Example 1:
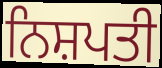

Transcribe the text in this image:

ਨਿਸ਼ਪਤੀ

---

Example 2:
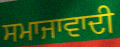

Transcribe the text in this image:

ਸਮਾਜਾਵਾਦੀ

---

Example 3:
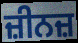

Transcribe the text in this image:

ਜ਼ੀਨਜ਼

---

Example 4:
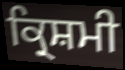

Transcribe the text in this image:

ਕ੍ਰਿਸ਼ਮੀ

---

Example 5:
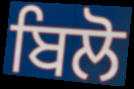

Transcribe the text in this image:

ਬਿਲੋ